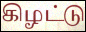
கிழட்டு